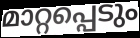
മാറ്റപ്പെടും